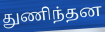
துணிந்தன